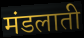
मंडलाती